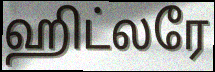
ஹிட்லரே